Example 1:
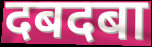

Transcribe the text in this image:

दबदबा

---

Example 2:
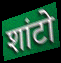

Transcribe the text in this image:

शांटो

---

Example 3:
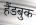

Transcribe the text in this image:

हैंडबुक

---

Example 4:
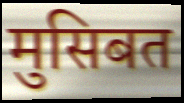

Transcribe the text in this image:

मुसिबत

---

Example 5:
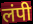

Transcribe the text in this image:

लंपी